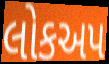
લોકઅપ